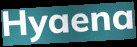
Hyaena